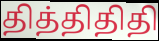
தித்திதிதி